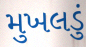
મુખલડું